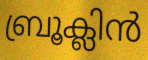
ബ്രൂക്ലിൻ